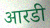
आरडी